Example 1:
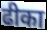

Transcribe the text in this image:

ढीका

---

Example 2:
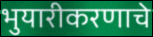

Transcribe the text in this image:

भुयारीकरणाचे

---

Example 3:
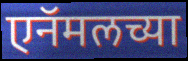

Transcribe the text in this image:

एनॅमलच्या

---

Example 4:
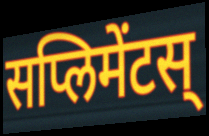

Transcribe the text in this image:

सप्लिमेंटस्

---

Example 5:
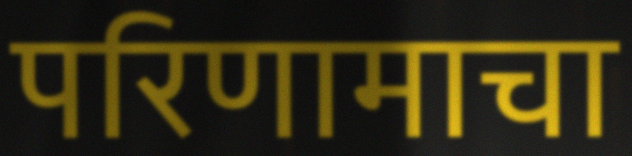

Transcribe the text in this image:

परिणामाचा